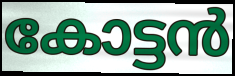
കോട്ടൻ